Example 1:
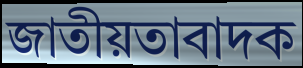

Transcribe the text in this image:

জাতীয়তাবাদক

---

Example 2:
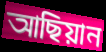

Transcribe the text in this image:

আছিয়ান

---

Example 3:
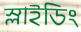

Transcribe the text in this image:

স্লাইডিং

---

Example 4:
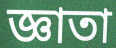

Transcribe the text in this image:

জ্ঞাতা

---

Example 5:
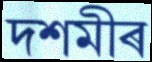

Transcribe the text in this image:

দশমীৰ